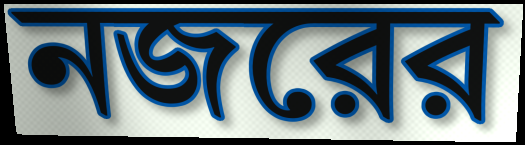
নজরের